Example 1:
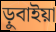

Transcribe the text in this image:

ড়ুবাইয়া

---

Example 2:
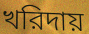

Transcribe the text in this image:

খরিদায়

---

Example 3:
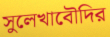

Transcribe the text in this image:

সুলেখাবৌদির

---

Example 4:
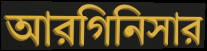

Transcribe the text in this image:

আরগিনিসার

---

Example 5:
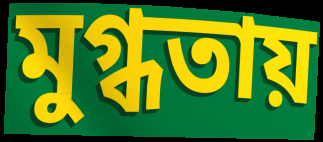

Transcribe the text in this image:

মুগ্ধতায়